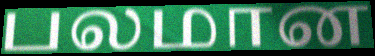
பலமான